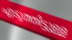
എടുത്തിട്ടുള്ള